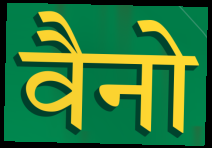
वैनो